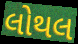
લોથલ